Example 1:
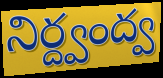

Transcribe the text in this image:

నిర్ద్వంద్వ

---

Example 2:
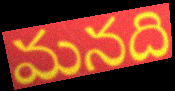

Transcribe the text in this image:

మనది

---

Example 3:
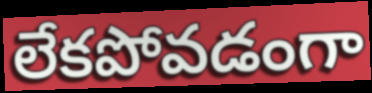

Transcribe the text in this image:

లేకపోవడంగా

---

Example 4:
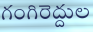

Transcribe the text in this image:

గంగిరెద్దుల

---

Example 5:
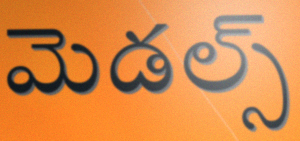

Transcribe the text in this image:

మెడల్స్